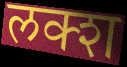
लक्श